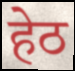
हेठ